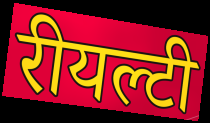
रीयल्टी